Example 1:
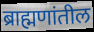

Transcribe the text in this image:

ब्राह्मणांतील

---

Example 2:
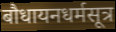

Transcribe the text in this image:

बौधायनधर्मसूत्र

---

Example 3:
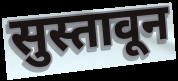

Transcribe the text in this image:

सुस्तावून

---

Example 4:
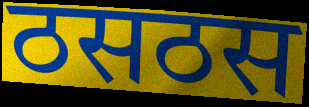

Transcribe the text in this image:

ठसठस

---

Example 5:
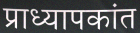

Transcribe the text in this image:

प्राध्यापकांत